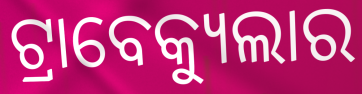
ଟ୍ରାବେକ୍ୟୁଲାର